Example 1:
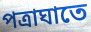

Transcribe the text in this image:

পত্রাঘাতে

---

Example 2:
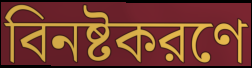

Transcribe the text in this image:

বিনষ্টকরণে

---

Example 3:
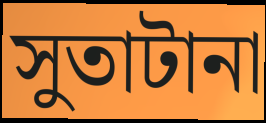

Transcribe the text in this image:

সুতাটানা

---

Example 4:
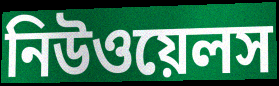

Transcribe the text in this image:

নিউওয়েলস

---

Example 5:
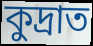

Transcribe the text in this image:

কুদ্রাত